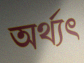
অর্থ্যৎ